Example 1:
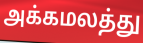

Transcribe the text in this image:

அக்கமலத்து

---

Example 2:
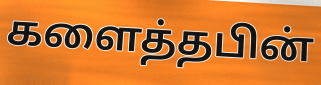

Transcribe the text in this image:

களைத்தபின்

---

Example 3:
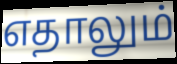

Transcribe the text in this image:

எதாலும்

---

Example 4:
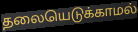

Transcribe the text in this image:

தலையெடுக்காமல்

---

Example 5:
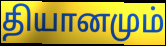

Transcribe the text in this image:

தியானமும்